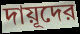
দায়ূদের